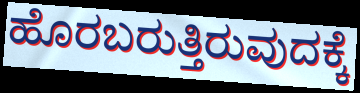
ಹೊರಬರುತ್ತಿರುವುದಕ್ಕೆ